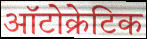
ऑटोक्रेटिक